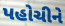
પહોચીને